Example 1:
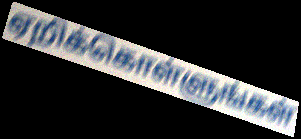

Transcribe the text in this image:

ஏறிக்கொள்ளுங்கள்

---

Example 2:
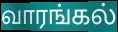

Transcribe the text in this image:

வாரங்கல்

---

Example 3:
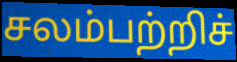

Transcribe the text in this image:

சலம்பற்றிச்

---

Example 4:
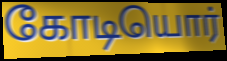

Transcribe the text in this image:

கோடியொர்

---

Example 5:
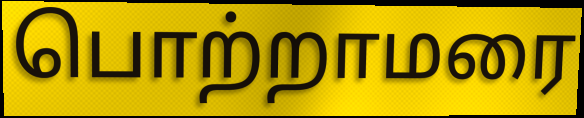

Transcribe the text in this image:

பொற்றாமரை